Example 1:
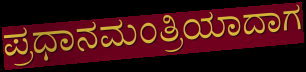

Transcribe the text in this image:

ಪ್ರಧಾನಮಂತ್ರಿಯಾದಾಗ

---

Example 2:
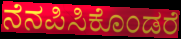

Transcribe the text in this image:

ನೆನಪಿಸಿಕೊಂಡರೆ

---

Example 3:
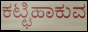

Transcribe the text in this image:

ಕಟ್ಟಿಹಾಕುವ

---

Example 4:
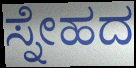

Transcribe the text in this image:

ಸ್ನೇಹದ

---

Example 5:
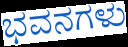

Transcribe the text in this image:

ಭವನಗಳು